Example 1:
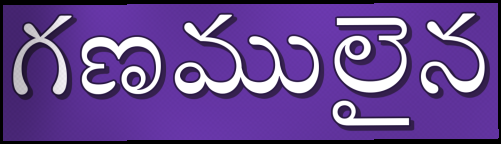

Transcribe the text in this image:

గణములైన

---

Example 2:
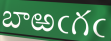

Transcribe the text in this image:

బాఱఁగఁ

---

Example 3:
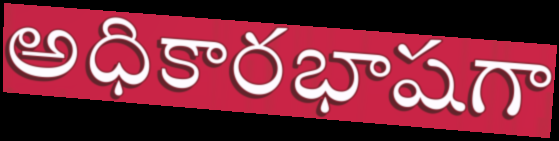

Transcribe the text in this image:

అధికారభాషగా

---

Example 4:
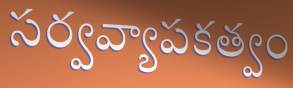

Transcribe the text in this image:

సర్వవ్యాపకత్వం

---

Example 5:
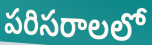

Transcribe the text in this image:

పరిసరాలలో